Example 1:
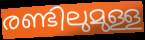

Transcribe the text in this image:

രണ്ടിലുമുള്ള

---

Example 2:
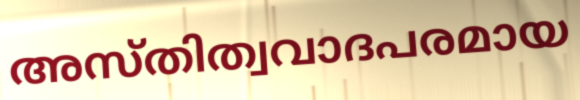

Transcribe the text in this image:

അസ്തിത്വവാദപരമായ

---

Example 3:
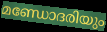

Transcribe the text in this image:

മണ്ഡോദരിയും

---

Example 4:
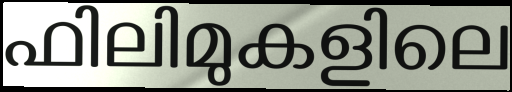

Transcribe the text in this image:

ഫിലിമുകളിലെ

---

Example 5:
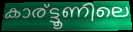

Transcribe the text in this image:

കാര്ട്ടൂണിലെ